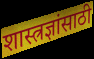
शास्त्रज्ञांसाठी